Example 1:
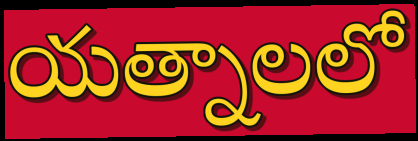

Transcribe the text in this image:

యత్నాలలో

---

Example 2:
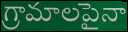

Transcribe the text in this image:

గ్రామాలపైనా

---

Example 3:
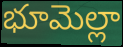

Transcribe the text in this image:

భూమెల్లా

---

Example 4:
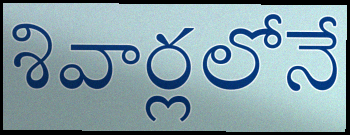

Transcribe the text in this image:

శివార్లలోనే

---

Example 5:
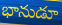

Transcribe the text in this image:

భానుడూ